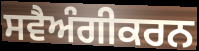
ਸਵੈਅੰਗੀਕਰਨ